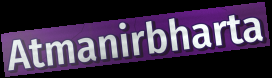
Atmanirbharta